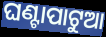
ଘଣ୍ଟାପାଟୁଆ